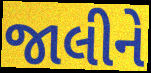
જાલીને